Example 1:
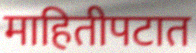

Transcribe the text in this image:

माहितीपटात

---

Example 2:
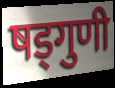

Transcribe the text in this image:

षड्गुणी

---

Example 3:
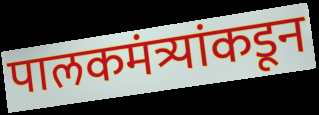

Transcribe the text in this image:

पालकमंत्र्यांकडून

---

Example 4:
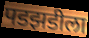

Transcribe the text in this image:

पडझडीला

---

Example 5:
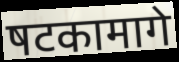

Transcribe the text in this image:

षटकामागे